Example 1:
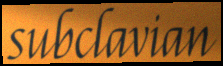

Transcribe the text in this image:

subclavian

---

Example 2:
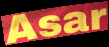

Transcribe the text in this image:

Asar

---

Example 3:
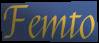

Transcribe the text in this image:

Femto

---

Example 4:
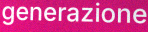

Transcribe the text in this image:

generazione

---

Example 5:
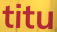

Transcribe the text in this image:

titu